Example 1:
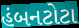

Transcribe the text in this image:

હંબનટોટા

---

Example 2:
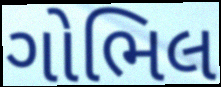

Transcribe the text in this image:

ગોભિલ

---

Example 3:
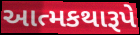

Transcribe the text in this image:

આત્મકથારૂપે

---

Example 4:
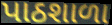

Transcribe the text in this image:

પાઠશાળા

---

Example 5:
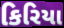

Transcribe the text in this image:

કિરિયા